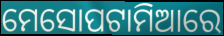
ମେସୋପଟାମିଆରେ